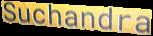
Suchandra